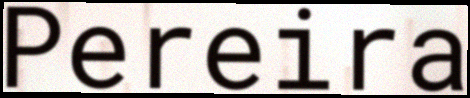
Pereira